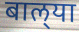
बाल्या